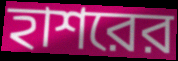
হাশরের